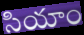
సియాం